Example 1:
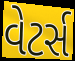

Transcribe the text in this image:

વેટર્સ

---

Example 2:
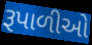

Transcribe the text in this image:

રૂપાળીઓ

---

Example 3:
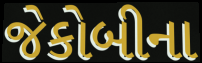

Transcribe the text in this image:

જેકોબીના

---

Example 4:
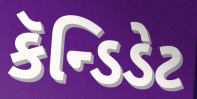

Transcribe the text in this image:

કૅન્ડિડેટ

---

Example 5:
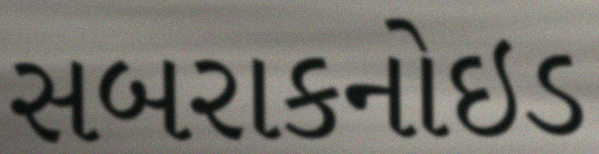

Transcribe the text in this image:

સબરાકનોઇડ